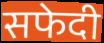
सफेदी